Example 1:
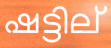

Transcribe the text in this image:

ഷട്ടില്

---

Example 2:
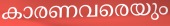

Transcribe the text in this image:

കാരണവരെയും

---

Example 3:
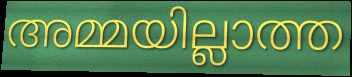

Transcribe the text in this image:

അമ്മയില്ലാത്ത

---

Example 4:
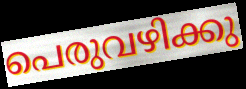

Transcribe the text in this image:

പെരുവഴിക്കു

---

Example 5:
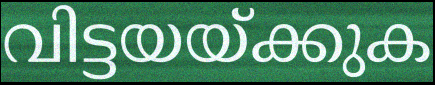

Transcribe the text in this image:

വിട്ടയയ്ക്കുക